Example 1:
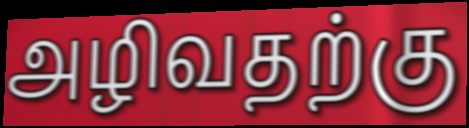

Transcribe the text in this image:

அழிவதற்கு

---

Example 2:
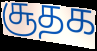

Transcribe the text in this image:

சூதக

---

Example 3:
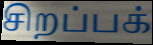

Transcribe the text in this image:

சிறப்பக்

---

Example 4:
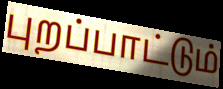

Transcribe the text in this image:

புறப்பாட்டும்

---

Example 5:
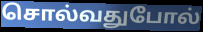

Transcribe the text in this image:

சொல்வதுபோல்